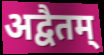
अद्वैतम्